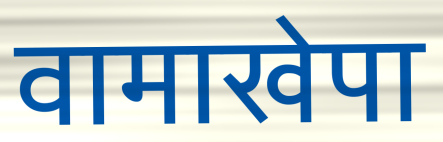
वामाखेपा